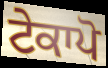
ਟੇਕਾਪੋ